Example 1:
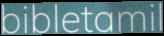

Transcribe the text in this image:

bibletamil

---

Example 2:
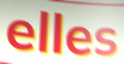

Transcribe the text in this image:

elles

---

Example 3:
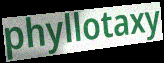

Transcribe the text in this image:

phyllotaxy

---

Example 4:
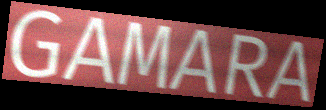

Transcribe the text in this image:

GAMARA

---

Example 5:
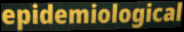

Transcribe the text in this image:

epidemiological